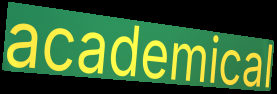
academical